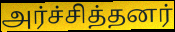
அர்ச்சித்தனர்